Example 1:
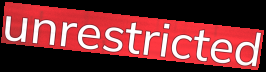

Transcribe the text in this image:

unrestricted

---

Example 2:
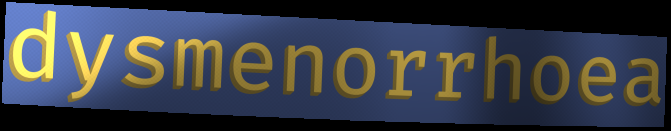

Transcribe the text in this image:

dysmenorrhoea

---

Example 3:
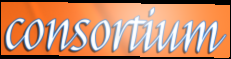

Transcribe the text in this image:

consortium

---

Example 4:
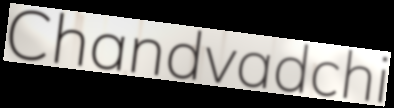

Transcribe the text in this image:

Chandvadchi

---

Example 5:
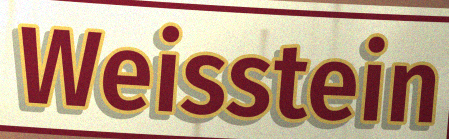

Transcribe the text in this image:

Weisstein